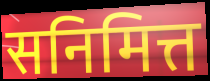
सनिमित्त